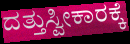
ದತ್ತುಸ್ವೀಕಾರಕ್ಕೆ